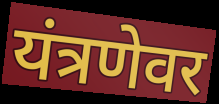
यंत्रणेवर